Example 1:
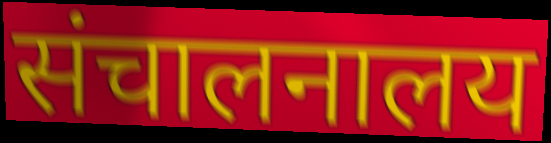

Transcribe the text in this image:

संचालनालय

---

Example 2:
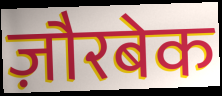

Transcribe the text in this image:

ज़ौरबेक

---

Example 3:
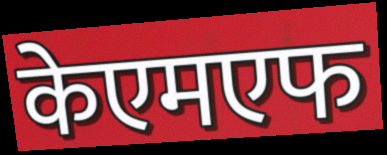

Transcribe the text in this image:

केएमएफ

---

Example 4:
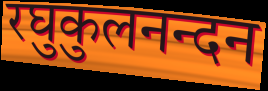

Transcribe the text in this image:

रघुकुलनन्दन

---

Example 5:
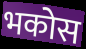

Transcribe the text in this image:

भकोस